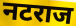
नटराज